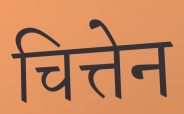
चित्तेन